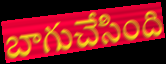
బాగుచేసింది